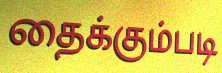
தைக்கும்படி